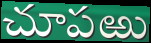
చూపఱు